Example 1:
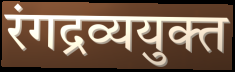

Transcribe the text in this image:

रंगद्रव्ययुक्त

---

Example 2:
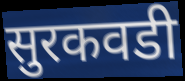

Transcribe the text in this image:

सुरकवडी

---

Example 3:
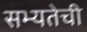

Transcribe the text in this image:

सभ्यतेची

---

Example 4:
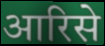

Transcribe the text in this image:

आरिसे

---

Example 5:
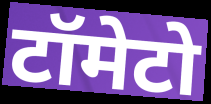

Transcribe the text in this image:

टॉमेटो